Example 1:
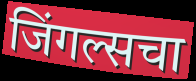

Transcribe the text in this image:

जिंगल्सचा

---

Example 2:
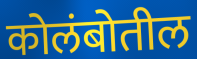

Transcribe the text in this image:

कोलंबोतील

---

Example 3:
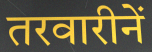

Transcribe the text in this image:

तरवारीनें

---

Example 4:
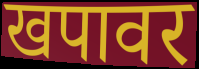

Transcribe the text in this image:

खपावर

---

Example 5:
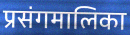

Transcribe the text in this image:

प्रसंगमालिका